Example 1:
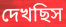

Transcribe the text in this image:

দেখছিস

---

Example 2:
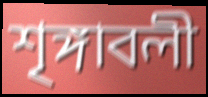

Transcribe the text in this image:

শৃঙ্গাবলী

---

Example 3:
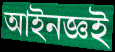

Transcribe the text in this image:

আইনজ্ঞই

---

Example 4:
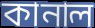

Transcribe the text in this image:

কানাল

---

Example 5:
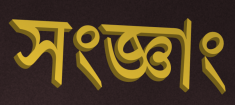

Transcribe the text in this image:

সংজ্ঞাং